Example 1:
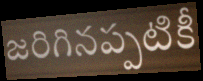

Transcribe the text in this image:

జరిగినప్పటికీ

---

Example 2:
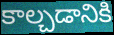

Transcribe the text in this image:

కాల్చడానికి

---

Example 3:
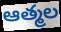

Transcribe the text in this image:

ఆత్మల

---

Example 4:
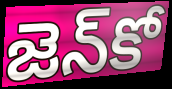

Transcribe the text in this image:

జెన్‌కో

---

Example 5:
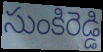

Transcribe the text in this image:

సుంకిరెడ్డి